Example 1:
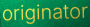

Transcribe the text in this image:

originator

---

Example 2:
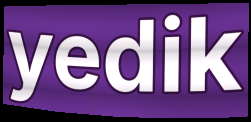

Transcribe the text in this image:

yedik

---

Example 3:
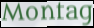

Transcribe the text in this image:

Montag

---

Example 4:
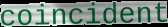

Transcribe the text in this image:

coincident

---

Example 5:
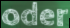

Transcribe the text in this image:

oder